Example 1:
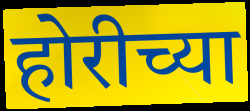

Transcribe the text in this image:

होरीच्या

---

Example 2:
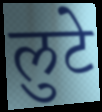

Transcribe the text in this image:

लुटे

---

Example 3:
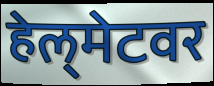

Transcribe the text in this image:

हेल्मेटवर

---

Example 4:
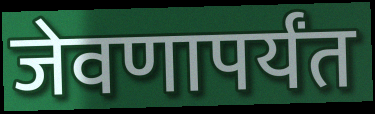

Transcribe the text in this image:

जेवणापर्यंत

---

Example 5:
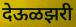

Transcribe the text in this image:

देऊळझरी